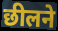
छीलने